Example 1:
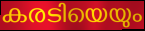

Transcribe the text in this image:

കരടിയെയും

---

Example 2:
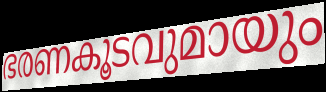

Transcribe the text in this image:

ഭരണകൂടവുമായും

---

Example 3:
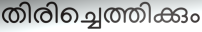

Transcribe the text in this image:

തിരിച്ചെത്തിക്കും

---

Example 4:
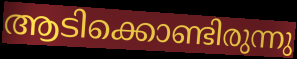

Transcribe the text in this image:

ആടിക്കൊണ്ടിരുന്നു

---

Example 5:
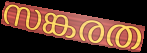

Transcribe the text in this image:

സങ്കരത